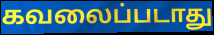
கவலைப்படாது